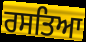
ਰਸਤਿਆ